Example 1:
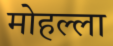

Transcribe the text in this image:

मोहल्ला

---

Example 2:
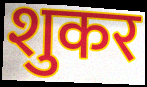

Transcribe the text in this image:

शुकर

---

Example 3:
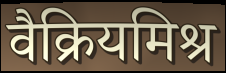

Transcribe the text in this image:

वैक्रियमिश्र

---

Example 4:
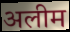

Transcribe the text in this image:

अलीम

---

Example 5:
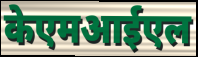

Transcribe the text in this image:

केएमआईएल